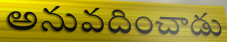
అనువదించాడు